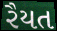
રૈયત